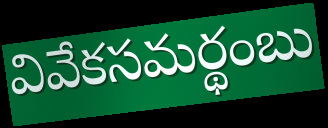
వివేకసమర్థంబు